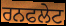
ਰਨਫਲੇਟ